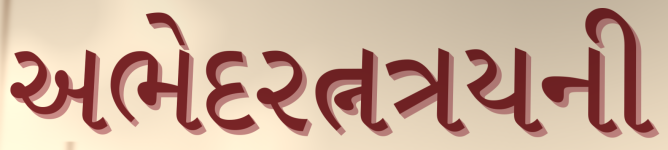
અભેદરત્નત્રયની